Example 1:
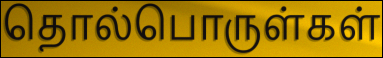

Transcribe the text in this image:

தொல்பொருள்கள்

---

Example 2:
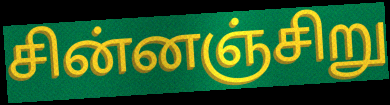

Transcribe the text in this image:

சின்னஞ்சிறு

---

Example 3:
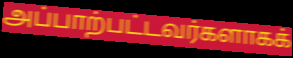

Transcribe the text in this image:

அப்பாற்பட்டவர்களாகக்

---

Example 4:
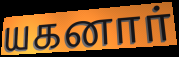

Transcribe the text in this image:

யகனார்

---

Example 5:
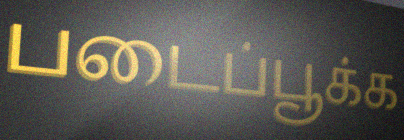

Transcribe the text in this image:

படைப்பூக்க